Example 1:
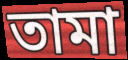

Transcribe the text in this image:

তামা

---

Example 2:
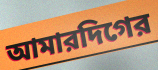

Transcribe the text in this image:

আমারদিগের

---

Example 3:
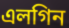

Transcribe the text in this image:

এলগিন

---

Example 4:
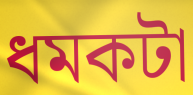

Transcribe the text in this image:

ধমকটা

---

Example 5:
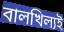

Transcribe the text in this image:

বালখিল্যই